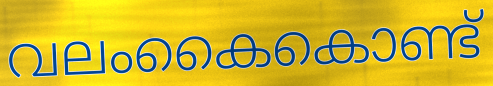
വലംകൈകൊണ്ട്